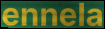
ennela